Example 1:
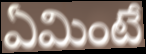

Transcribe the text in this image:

ఏమింటే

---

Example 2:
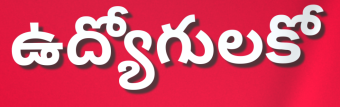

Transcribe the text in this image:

ఉద్యోగులకో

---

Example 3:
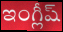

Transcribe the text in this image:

ఇంగ్లీష్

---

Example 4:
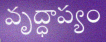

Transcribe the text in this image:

వృద్ధాప్యం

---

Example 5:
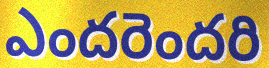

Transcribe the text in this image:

ఎందరెందరి